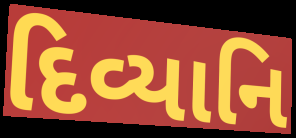
દિવ્યાનિ